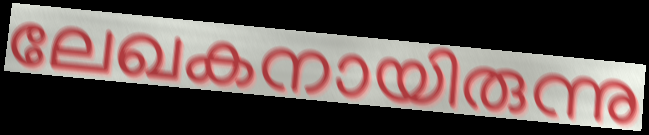
ലേഖകനായിരുന്നു